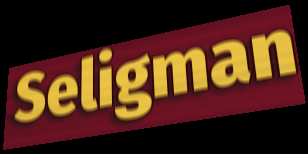
Seligman